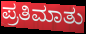
ಪ್ರತಿಮಾತು